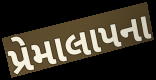
પ્રેમાલાપના